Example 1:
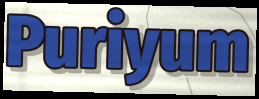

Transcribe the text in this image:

Puriyum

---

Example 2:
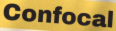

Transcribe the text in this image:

Confocal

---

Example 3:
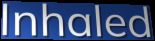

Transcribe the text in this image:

Inhaled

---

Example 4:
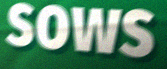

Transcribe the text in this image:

sows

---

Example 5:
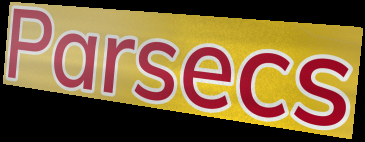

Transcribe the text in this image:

Parsecs